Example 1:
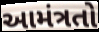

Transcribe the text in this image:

આમંત્રતો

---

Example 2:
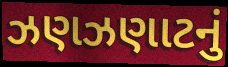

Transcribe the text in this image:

ઝણઝણાટનું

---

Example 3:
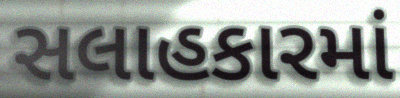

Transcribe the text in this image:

સલાહકારમાં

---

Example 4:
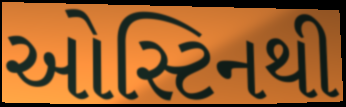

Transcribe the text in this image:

ઓસ્ટિનથી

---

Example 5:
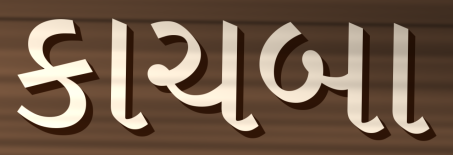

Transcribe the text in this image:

કાચબા